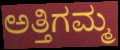
ಅತ್ತಿಗಮ್ಮ